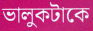
ভালুকটাকে